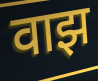
वाझ